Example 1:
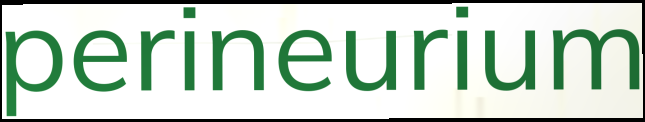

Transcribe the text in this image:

perineurium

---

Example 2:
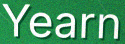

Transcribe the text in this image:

Yearn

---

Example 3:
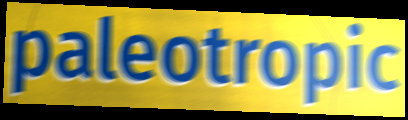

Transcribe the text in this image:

paleotropic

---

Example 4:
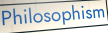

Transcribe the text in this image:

Philosophism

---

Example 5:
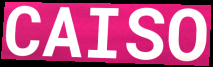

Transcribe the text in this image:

CAISO